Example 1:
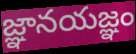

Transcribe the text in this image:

జ్ఞానయజ్ఞం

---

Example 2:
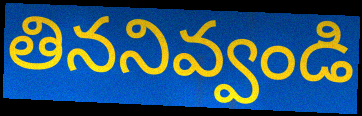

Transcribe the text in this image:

తిననివ్వండి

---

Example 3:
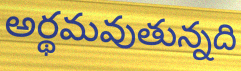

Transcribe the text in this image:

అర్థమవుతున్నది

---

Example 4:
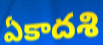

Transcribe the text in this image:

ఏకాదశి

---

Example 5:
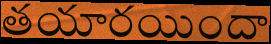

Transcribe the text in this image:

తయారయిందా